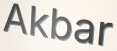
Akbar